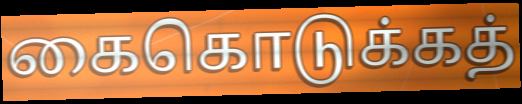
கைகொடுக்கத்